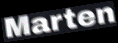
Marten